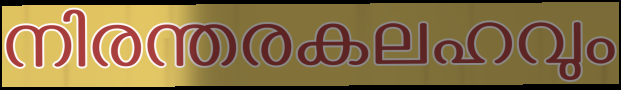
നിരന്തരകലഹവും